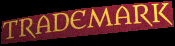
TRADEMARK